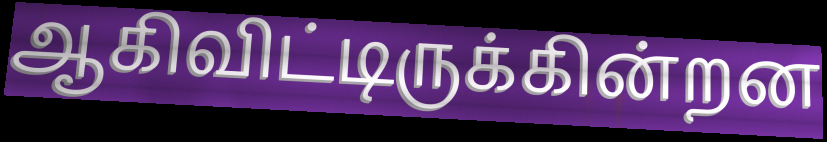
ஆகிவிட்டிருக்கின்றன